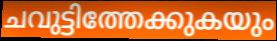
ചവുട്ടിത്തേക്കുകയും